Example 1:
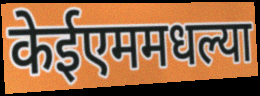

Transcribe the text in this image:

केईएममधल्या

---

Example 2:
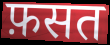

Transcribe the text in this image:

फ़सत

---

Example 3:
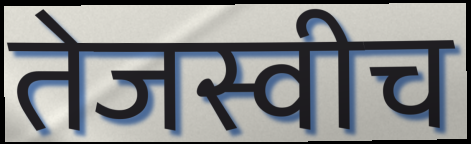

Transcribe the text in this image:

तेजस्वीच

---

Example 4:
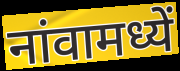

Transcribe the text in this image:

नांवामध्यें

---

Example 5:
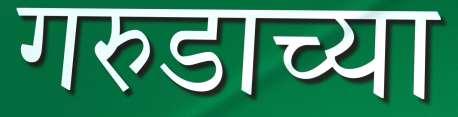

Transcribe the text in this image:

गरुडाच्या